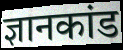
ज्ञानकांड